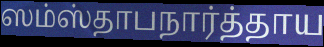
ஸம்ஸ்தாபநார்த்தாய